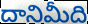
దానిమీది